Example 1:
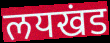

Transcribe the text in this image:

लयखंड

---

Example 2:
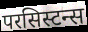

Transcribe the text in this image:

परसिस्टन्स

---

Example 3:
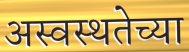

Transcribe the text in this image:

अस्वस्थतेच्या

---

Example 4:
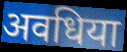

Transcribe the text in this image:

अवधिया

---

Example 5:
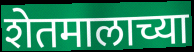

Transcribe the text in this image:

शेतमालाच्या